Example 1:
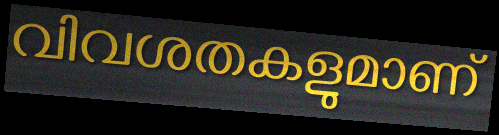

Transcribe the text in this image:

വിവശതകളുമാണ്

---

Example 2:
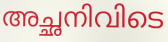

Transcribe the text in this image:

അച്ഛനിവിടെ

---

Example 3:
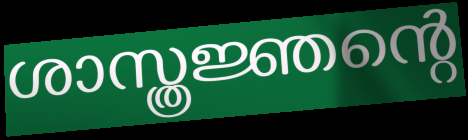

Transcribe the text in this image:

ശാസ്ത്രജ്ഞന്റെ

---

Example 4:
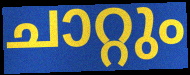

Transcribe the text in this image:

ചാറ്റും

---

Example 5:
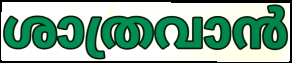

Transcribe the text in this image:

ശാത്രവാൻ